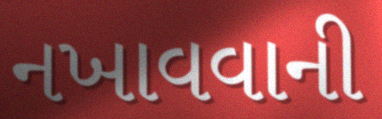
નખાવવાની